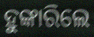
ହୁଙ୍କାରିଲେ